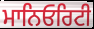
ਮਾਨਿਓਰਿਟੀ